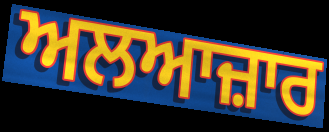
ਅਲਆਜ਼ਾਰ